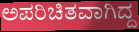
ಅಪರಿಚಿತವಾಗಿದ್ದ